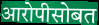
आरोपीसोबत